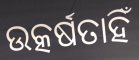
ଉତ୍କର୍ଷତାହିଁ